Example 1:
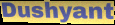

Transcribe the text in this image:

Dushyant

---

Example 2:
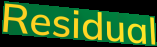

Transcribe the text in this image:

Residual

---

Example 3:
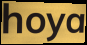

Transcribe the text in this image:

hoya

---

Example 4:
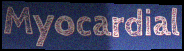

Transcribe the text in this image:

Myocardial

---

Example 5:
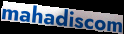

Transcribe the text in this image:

mahadiscom